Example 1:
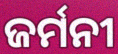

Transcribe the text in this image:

ଜର୍ମନୀ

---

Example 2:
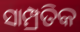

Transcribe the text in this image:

ସାମ୍ପ୍ରତିକ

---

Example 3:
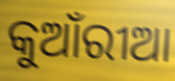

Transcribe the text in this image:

କୁଆଁରୀଆ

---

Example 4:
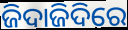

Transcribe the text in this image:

ଜିଦାଜିଦିରେ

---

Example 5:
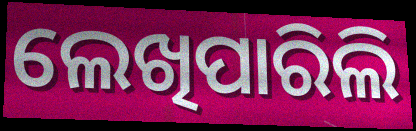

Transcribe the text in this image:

ଲେଖିପାରିଲି